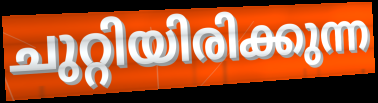
ചുറ്റിയിരിക്കുന്ന